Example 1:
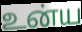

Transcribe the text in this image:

உன்ய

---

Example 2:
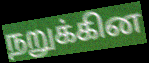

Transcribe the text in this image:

நறுக்கின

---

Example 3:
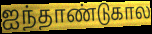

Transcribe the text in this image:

ஐந்தாண்டுகால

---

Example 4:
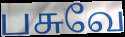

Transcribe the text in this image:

பசுவே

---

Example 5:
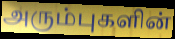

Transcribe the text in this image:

அரும்புகளின்